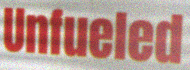
Unfueled